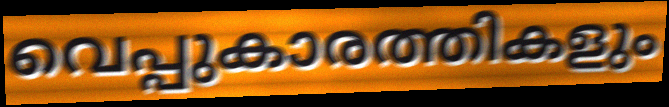
വെപ്പുകാരത്തികളും